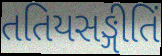
તતિયસઙ્ગીતિં